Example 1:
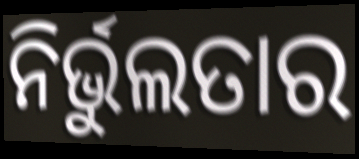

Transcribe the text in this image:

ନିର୍ଭୁଲତାର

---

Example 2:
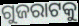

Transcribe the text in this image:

ଗୁଜରାଟକୁ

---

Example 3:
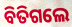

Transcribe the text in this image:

ବିତିଗଲେ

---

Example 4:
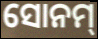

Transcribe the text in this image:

ସୋନମ୍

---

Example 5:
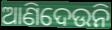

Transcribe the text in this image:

ଆଣିଦେଉନି